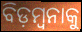
ବିଡ଼ମ୍ୱନାକୁ